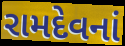
રામદેવનાં